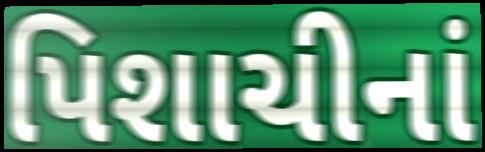
પિશાચીનાં